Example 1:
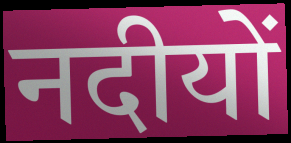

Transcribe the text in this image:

नदीयों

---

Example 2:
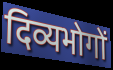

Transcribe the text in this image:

दिव्यभोगों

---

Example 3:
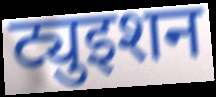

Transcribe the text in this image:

ट्युइशन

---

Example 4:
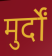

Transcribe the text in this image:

मुर्दों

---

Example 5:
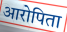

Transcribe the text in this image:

आरोपिता